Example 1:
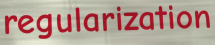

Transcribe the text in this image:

regularization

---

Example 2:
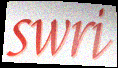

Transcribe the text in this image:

swri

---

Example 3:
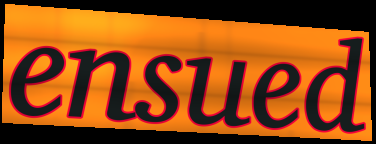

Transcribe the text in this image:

ensued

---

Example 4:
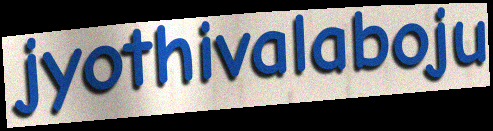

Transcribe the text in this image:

jyothivalaboju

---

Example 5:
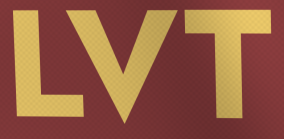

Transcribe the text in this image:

LVT